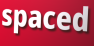
spaced